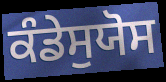
ਕੰਡੇਸੁਯੋਸ